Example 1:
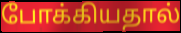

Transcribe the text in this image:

போக்கியதால்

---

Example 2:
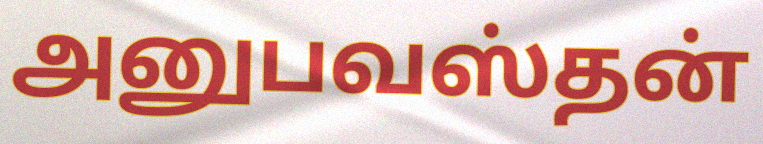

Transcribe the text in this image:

அனுபவஸ்தன்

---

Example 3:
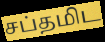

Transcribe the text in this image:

சப்தமிட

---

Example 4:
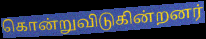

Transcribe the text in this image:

கொன்றுவிடுகின்றனர்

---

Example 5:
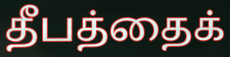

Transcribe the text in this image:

தீபத்தைக்